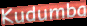
Kudumba